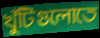
খুঁটিগুলোতে